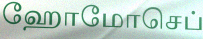
ஹோமோசெப்